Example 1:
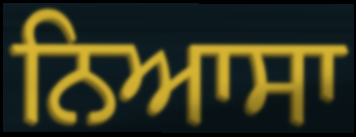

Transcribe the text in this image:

ਨਿਆਸਾ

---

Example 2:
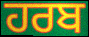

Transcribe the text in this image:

ਹਰਬ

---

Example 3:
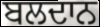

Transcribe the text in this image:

ਬਲਦਾਨ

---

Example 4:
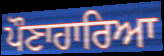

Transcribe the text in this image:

ਪੌਣਾਹਾਰਿਆ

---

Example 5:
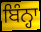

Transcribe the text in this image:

ਬਿੰਨ੍ਹਾ